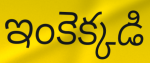
ఇంకెక్కడి